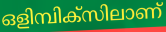
ഒളിമ്പിക്സിലാണ്